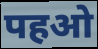
पहओ